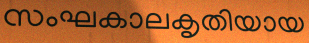
സംഘകാലകൃതിയായ